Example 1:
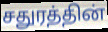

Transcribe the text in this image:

சதுரத்தின்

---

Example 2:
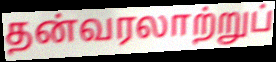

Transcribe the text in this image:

தன்வரலாற்றுப்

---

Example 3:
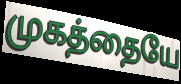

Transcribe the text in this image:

முகத்தையே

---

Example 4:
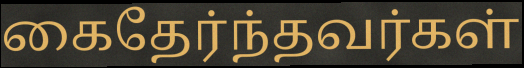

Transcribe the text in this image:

கைதேர்ந்தவர்கள்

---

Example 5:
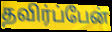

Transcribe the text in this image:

தவிர்ப்பேன்